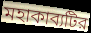
মহাকাব্যটির